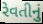
રેવતીનું